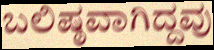
ಬಲಿಷ್ಠವಾಗಿದ್ದವು